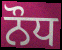
ਨੌਧ